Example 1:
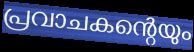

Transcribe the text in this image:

പ്രവാചകന്റെയും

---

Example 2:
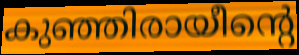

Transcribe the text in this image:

കുഞ്ഞിരായീന്റെ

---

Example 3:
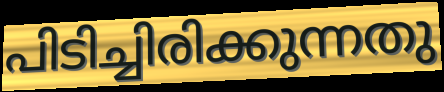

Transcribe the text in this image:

പിടിച്ചിരിക്കുന്നതു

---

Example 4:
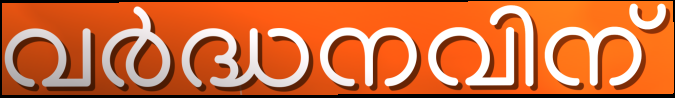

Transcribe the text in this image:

വർദ്ധനവിന്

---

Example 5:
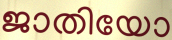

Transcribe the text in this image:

ജാതിയോ